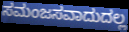
ಸಮಂಜಸವಾದುದಲ್ಲ